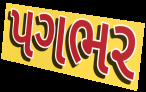
પગભર